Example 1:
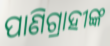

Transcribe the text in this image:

ପାଣିଗ୍ରାହୀଙ୍କ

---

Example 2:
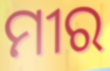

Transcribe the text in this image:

ମୀର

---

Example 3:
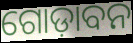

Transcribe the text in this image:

ଗୋଡ଼ାବନ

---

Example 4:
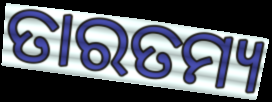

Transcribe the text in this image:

ତାରତମ୍ୟ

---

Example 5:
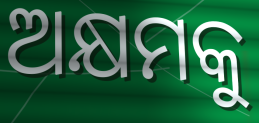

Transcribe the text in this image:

ଅକ୍ଷମକୁ